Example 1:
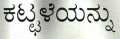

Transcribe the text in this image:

ಕಟ್ಟಳೆಯನ್ನು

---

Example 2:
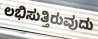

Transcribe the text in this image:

ಲಭಿಸುತ್ತಿರುವುದು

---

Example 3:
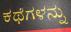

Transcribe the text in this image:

ಕಥೆಗಳನ್ನು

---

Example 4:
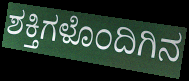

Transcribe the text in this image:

ಶಕ್ತಿಗಳೊಂದಿಗಿನ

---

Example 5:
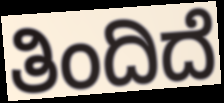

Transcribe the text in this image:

ತಿಂದಿದೆ